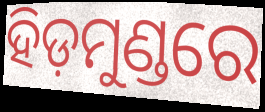
ହିଡ଼ମୁଣ୍ଡରେ